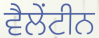
ਵੈਲੇਂਟੀਨ